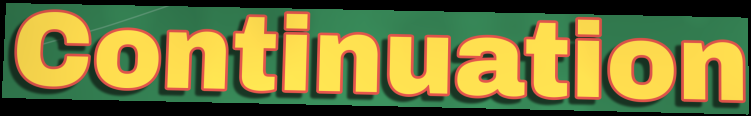
Continuation